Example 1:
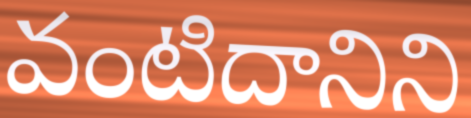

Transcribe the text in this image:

వంటిదానిని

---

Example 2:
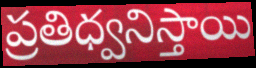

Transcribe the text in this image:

ప్రతిధ్వనిస్తాయి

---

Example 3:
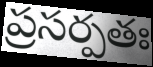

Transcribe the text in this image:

ప్రసర్పతః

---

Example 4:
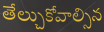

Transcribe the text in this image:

తేల్చుకోవాల్సిన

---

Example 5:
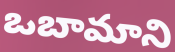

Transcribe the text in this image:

ఒబామాని